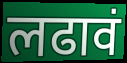
लढावं